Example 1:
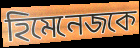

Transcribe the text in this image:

হিমেনেজকে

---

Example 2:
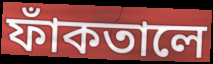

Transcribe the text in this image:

ফাঁকতালে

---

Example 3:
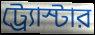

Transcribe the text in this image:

ট্র্যোস্টার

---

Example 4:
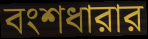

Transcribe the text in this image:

বংশধারার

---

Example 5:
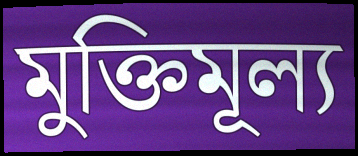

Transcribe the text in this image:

মুক্তিমূল্য